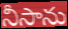
నీసాను